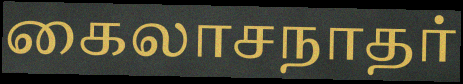
கைலாசநாதர்